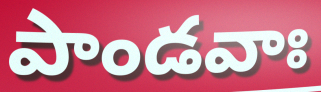
పాండవాః